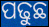
ପଢୁଛ